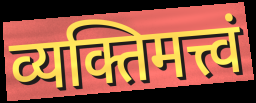
व्यक्तिमत्त्वं